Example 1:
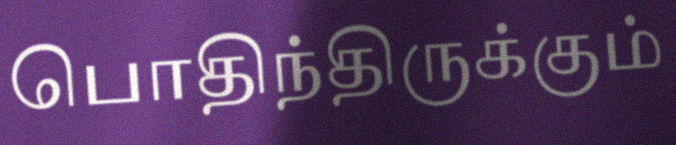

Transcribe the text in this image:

பொதிந்திருக்கும்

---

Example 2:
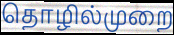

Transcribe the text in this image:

தொழில்முறை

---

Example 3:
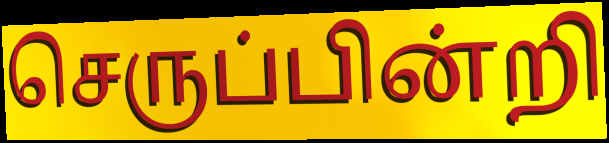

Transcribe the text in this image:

செருப்பின்றி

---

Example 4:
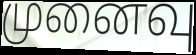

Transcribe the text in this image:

முனைவு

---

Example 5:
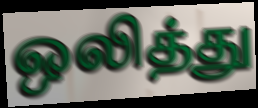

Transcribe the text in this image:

ஒலித்து